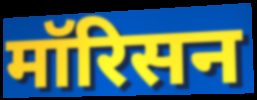
मॉरिसन